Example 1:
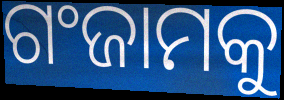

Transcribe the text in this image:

ଗଂଜାମକୁ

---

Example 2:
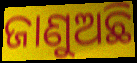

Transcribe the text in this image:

ଜାଣୁଅଛି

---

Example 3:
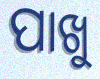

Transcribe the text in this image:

ପାଖୁ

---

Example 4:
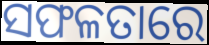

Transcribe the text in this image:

ସଫଳତାରେ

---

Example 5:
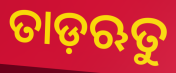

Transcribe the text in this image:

ତାଡ଼ଋତୁ